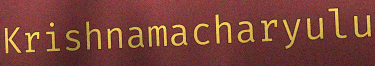
Krishnamacharyulu